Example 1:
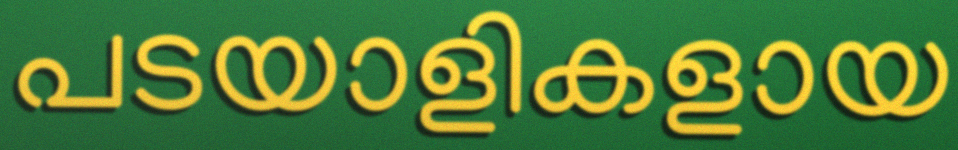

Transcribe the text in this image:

പടയാളികളായ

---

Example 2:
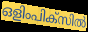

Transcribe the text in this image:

ഒളിംപിക്സിൽ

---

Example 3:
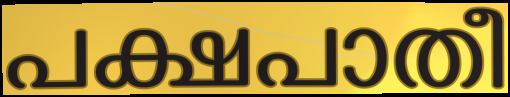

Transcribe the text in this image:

പക്ഷപാതീ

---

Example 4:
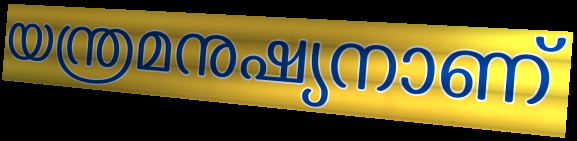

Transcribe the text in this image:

യന്ത്രമനുഷ്യനാണ്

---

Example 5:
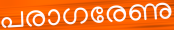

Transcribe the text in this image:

പരാഗരേണു